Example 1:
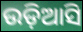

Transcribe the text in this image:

ଉଡ଼ିଆସି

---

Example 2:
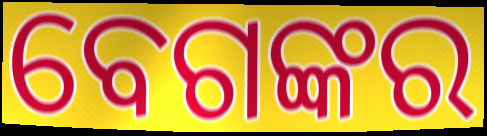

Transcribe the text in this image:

ବେଗଙ୍କର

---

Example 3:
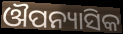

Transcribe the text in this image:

ଔପନ୍ୟାସିକ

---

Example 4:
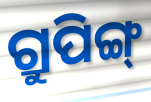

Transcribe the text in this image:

ଗ୍ରୁପିଙ୍ଗ୍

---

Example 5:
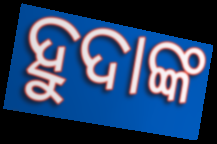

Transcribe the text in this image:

ହୁଦାଙ୍କ